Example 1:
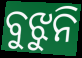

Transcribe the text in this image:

ବୁଝୁନି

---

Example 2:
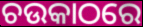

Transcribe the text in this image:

ଚଉକାଠରେ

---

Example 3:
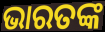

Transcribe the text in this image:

ଭାରତଙ୍କ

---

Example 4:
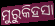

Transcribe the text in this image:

ମୁରୁକିହସା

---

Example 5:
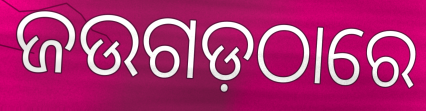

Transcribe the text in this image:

ଜଉଗଡ଼ଠାରେ